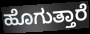
ಹೊಗುತ್ತಾರೆ